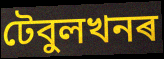
টেবুলখনৰ